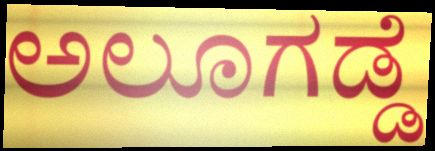
ಅಲೂಗಡ್ಡೆ